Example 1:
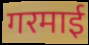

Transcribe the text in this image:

गरमाई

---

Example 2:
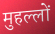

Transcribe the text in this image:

मुहल्लों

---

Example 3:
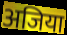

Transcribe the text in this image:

अजिया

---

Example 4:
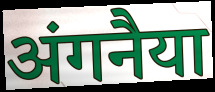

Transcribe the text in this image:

अंगनैया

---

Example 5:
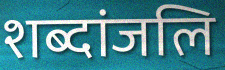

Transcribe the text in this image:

शब्दांजलि